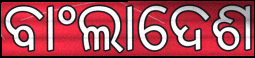
ବାଂଲାଦେଶ